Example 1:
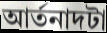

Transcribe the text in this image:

আর্তনাদটা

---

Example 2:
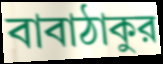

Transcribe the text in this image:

বাবাঠাকুর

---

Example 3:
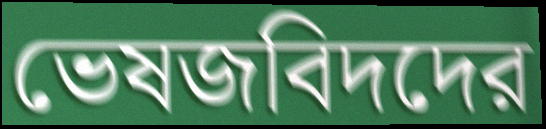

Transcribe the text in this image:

ভেষজবিদদের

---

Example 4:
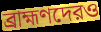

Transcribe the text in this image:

ব্রাহ্মণদেরও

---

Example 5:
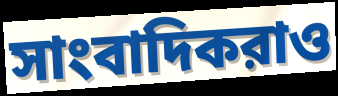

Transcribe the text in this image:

সাংবাদিকরাও